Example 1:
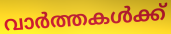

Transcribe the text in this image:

വാർത്തകൾക്ക്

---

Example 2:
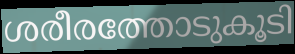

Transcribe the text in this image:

ശരീരത്തോടുകൂടി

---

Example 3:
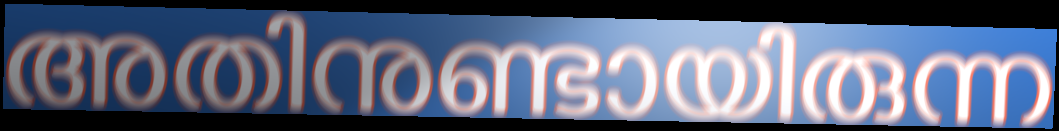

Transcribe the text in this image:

അതിനുണ്ടായിരുന്ന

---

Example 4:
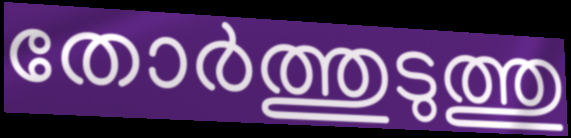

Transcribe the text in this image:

തോർത്തുടുത്തു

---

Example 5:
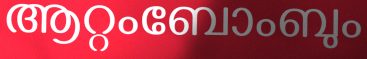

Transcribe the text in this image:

ആറ്റംബോംബും